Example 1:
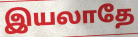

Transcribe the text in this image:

இயலாதே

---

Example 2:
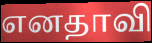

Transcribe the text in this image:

எனதாவி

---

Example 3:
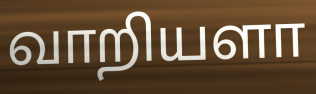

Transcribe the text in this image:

வாறியளா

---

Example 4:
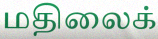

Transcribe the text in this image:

மதிலைக்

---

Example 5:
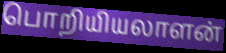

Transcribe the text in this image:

பொறியியலாளன்